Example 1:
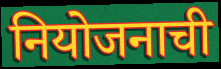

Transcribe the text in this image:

नियोजनाची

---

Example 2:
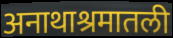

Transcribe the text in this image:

अनाथाश्रमातली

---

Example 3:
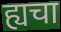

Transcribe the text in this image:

ह्यचा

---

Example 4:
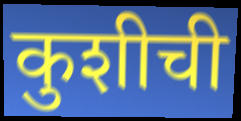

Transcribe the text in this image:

कुशीची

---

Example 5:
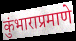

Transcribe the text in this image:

कुंभाराप्रमाणे